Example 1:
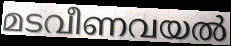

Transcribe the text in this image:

മടവീണവയൽ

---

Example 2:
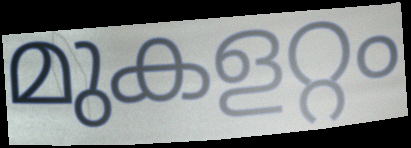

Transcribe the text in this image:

മുകളറ്റം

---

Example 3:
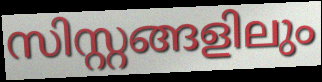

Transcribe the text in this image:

സിസ്റ്റങ്ങളിലും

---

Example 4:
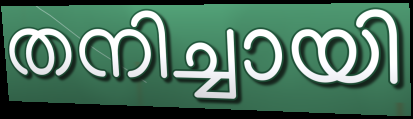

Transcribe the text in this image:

തനിച്ചായി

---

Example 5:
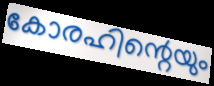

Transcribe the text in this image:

കോരഹിന്റെയും